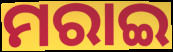
ମରାଇ